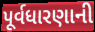
પૂર્વધારણાની